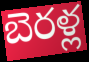
బెరళ్ల